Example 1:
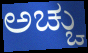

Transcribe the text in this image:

ಅಚ್ಚು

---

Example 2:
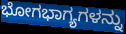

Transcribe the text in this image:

ಭೋಗಭಾಗ್ಯಗಳನ್ನು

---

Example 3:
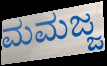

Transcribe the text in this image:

ಮಮಜ್ಜ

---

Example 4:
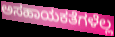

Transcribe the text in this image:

ಅಸಹಾಯಕತೆಗಳೆಲ್ಲ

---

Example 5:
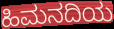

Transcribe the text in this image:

ಹಿಮನದಿಯ